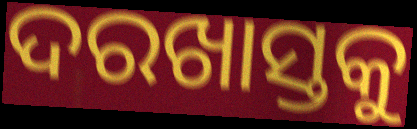
ଦରଖାସ୍ତକୁ